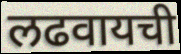
लढवायची